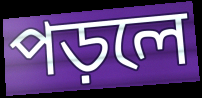
পড়লে